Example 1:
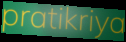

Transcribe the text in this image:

pratikriya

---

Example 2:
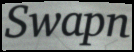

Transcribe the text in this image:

Swapn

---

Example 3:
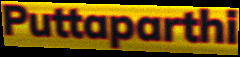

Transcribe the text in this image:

Puttaparthi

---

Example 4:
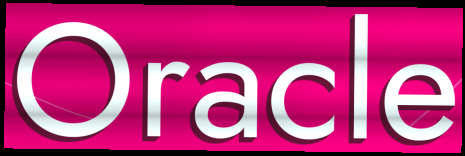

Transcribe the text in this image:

Oracle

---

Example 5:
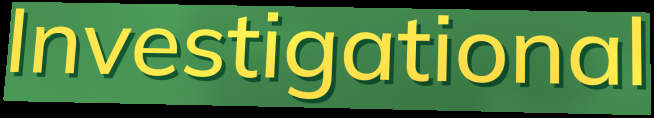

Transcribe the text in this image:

Investigational